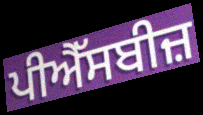
ਪੀਐੱਸਬੀਜ਼